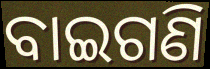
ବାଇଗଣି